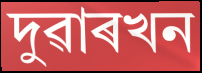
দুৱাৰখন